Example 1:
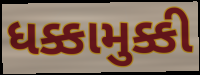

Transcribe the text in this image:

ધક્કામુક્કી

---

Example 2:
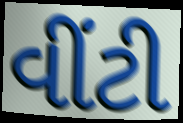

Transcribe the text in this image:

વીંટી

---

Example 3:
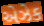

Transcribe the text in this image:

એઝેક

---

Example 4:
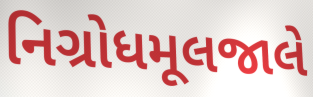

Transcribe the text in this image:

નિગ્રોધમૂલજાલે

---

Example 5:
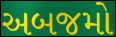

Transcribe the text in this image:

અબજમો